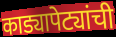
काड्यापेट्यांची